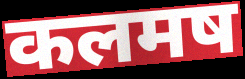
कलमष